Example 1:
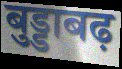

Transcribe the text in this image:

बुड्डाबढ़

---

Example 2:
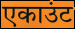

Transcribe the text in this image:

एकाउंट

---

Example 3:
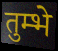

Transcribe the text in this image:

तुम्भे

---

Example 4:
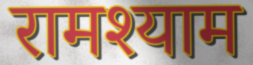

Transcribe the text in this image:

रामश्याम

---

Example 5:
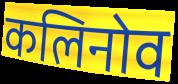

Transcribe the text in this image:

कलिनोव